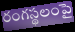
రంగస్థలంపై